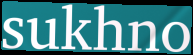
sukhno